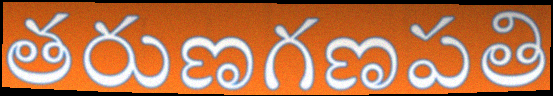
తరుణగణపతి